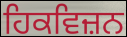
ਹਿਕਵਿਜ਼ਨ